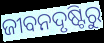
ଜୀବନଦୃଷ୍ଟିରୁ